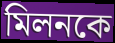
মিলনকে